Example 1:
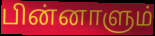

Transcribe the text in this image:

பின்னாளும்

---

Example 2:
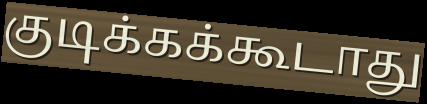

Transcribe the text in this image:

குடிக்கக்கூடாது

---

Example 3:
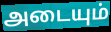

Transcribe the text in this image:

அடையும்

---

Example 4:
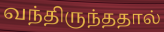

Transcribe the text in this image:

வந்திருந்ததால்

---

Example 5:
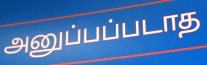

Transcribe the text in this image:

அனுப்பப்படாத